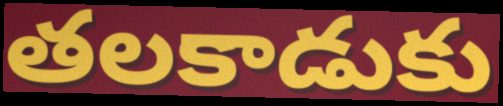
తలకాడుకు